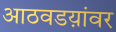
आठवडय़ांवर